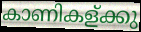
കാണികള്ക്കു